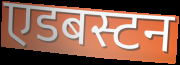
एडबस्टन